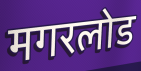
मगरलोड